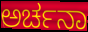
ಅರ್ಚನಾ